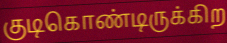
குடிகொண்டிருக்கிற